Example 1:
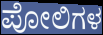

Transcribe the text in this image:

ಪೋಲಿಗಳ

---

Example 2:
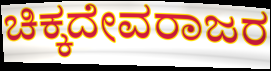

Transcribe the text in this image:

ಚಿಕ್ಕದೇವರಾಜರ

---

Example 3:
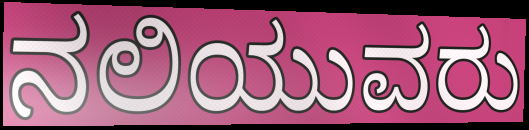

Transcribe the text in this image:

ನಲಿಯುವರು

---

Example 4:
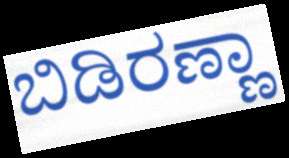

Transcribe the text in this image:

ಬಿಡಿರಣ್ಣಾ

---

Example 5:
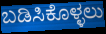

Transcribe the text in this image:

ಬಡಿಸಿಕೊಳ್ಳಲು